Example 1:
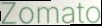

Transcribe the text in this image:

Zomato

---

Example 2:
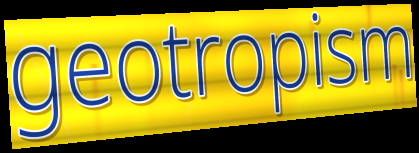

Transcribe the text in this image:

geotropism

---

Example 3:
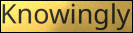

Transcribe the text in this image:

Knowingly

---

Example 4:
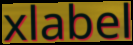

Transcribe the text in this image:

xlabel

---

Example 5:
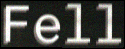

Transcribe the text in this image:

Fell